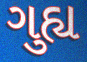
ગુહ્ય